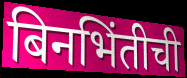
बिनभिंतीची